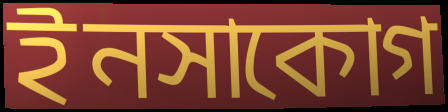
ইনসাকোগ